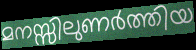
മനസ്സിലുണർത്തിയ